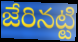
జేరినట్టి